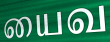
யைவ